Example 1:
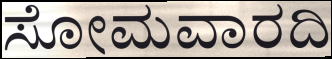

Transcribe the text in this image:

ಸೋಮವಾರದಿ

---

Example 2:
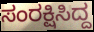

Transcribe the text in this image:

ಸಂರಕ್ಷಿಸಿದ್ದ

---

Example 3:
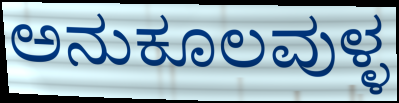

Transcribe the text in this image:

ಅನುಕೂಲವುಳ್ಳ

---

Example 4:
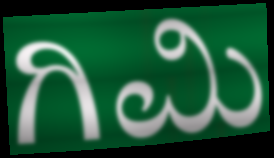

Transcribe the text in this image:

ಗಿಮಿ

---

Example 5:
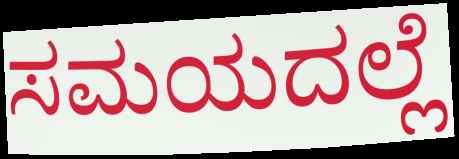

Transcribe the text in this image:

ಸಮಯದಲ್ಲೆ